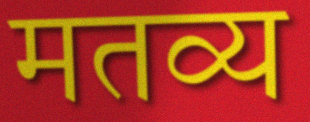
मतव्य